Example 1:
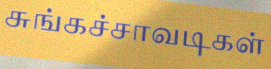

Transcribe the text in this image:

சுங்கச்சாவடிகள்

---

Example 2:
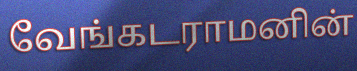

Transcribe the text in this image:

வேங்கடராமனின்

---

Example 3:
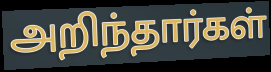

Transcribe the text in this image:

அறிந்தார்கள்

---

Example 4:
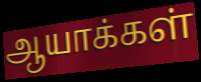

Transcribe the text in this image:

ஆயாக்கள்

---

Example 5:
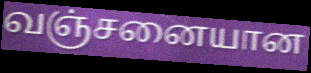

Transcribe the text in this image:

வஞ்சனையான